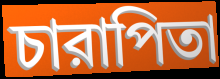
চারাপিতা